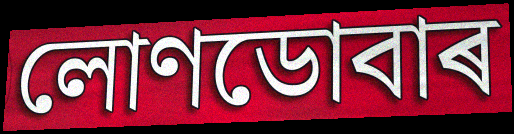
লোণডোবাৰ